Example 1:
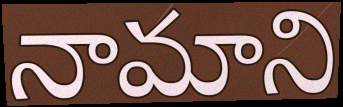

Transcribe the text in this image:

నామాని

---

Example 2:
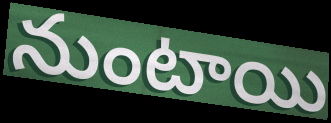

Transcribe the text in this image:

నుంటాయి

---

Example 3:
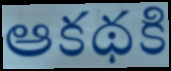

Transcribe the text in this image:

ఆకథకి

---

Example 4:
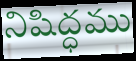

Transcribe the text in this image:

నిషిద్ధము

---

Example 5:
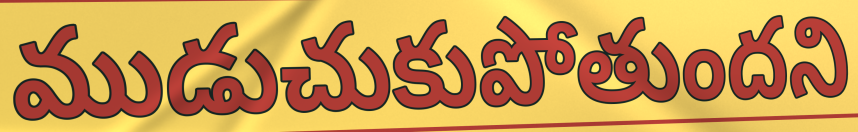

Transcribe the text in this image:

ముడుచుకుపోతుందని